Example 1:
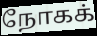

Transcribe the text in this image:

நோகக்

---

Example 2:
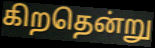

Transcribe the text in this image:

கிறதென்று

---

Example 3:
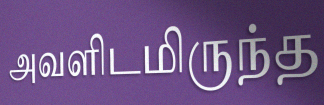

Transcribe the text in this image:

அவளிடமிருந்த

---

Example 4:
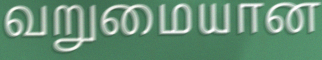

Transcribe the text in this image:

வறுமையான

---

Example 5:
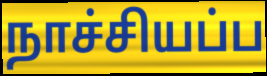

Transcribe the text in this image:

நாச்சியப்ப